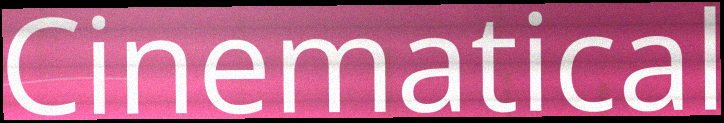
Cinematical